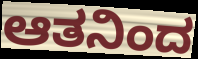
ಆತನಿಂದ